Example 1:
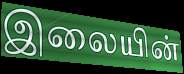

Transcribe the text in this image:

இலையின்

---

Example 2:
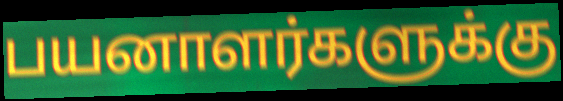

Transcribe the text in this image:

பயனாளர்களுக்கு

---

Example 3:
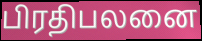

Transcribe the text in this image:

பிரதிபலனை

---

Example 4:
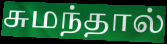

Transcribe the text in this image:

சுமந்தால்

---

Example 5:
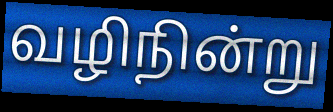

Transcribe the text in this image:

வழிநின்று